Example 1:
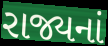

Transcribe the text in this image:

રાજ્યનાં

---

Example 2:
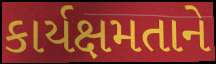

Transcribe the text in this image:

કાર્યક્ષમતાને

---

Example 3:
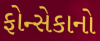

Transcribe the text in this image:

ફોન્સેકાનો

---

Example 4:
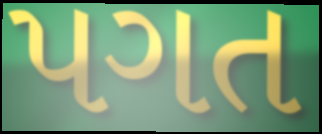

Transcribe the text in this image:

પગત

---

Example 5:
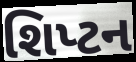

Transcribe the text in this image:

શિપ્ટન